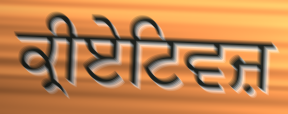
ਕ੍ਰੀਏਟਿਵਜ਼